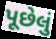
પૂછેલું